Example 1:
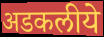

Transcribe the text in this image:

अडकलीये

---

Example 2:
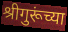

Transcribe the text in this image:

श्रीगुरूंच्या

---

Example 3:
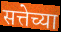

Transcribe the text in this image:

सत्तेच्या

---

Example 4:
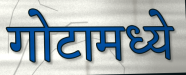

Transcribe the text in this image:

गोटामध्ये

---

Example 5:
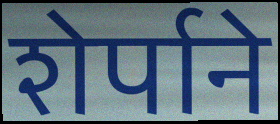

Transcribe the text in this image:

शेर्पाने